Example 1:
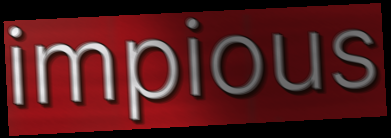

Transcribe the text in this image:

impious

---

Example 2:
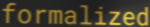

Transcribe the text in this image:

formalized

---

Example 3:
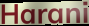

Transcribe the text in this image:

Harani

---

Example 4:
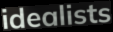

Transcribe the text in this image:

idealists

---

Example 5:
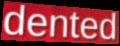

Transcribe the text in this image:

dented